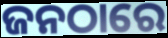
ଜନଠାରେ